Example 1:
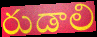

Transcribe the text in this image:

రుడాలి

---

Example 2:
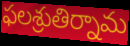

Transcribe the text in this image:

ఫలశ్రుతిర్నామ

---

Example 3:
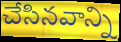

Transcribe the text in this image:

చేసినవాన్ని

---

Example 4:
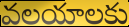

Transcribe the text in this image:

వలయాలకు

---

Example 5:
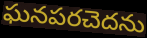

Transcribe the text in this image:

ఘనపరచెదను